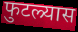
फुटल्यास